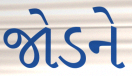
જોડને